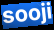
sooji